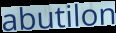
abutilon